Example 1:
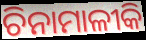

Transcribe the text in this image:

ଚିନାମାଳୀକି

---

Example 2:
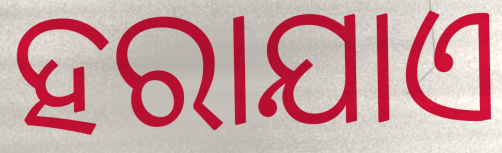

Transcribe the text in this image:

ହରାଯାଏ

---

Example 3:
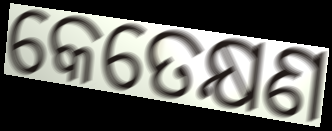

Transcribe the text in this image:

କେତେକ୍ଷଣ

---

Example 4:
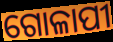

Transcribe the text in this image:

ଗୋଳାପୀ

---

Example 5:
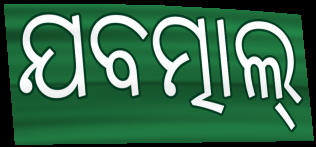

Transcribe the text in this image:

ଯବତ୍ମାଲ୍